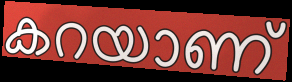
കറയാണ്